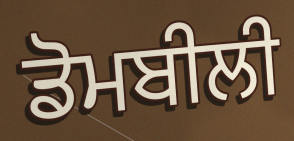
ਡੋਮਬੀਲੀ